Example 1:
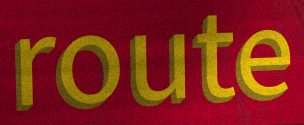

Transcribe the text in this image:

route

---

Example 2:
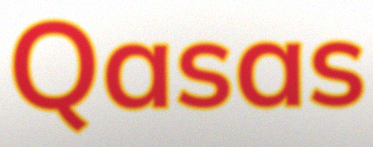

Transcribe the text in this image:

Qasas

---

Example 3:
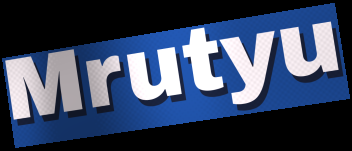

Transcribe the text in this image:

Mrutyu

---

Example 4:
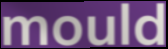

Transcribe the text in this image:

mould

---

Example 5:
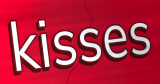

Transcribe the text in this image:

kisses